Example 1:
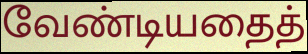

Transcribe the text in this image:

வேண்டியதைத்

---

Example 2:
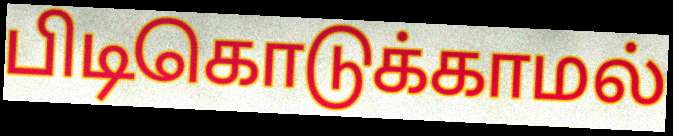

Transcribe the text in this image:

பிடிகொடுக்காமல்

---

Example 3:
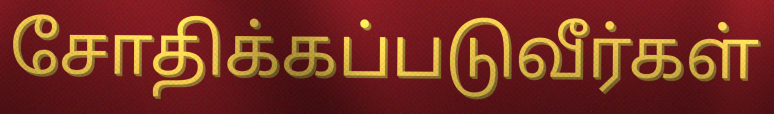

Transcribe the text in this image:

சோதிக்கப்படுவீர்கள்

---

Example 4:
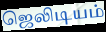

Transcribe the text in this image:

ஜெலிடியம்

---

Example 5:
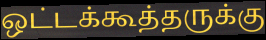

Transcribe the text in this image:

ஒட்டக்கூத்தருக்கு